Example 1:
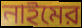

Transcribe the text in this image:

নাইমের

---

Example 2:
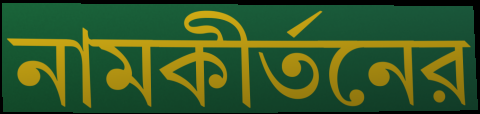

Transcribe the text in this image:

নামকীর্তনের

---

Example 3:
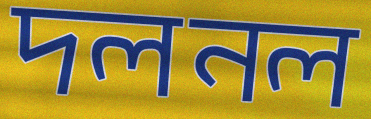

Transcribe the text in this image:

দলনল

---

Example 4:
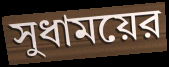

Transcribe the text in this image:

সুধাময়ের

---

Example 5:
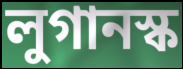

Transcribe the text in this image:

লুগানস্ক